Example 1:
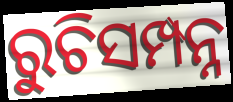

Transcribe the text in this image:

ରୁଚିସମ୍ପନ୍ନ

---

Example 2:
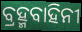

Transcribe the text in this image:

ବ୍ରହ୍ମବାହିନୀ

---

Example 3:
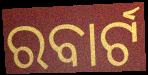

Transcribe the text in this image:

ରବାର୍ଟ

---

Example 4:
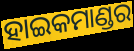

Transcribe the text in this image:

ହାଇକମାଣ୍ଡର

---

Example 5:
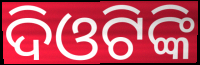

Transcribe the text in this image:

ଦିଓଟିଙ୍କି